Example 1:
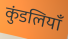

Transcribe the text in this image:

कुंडलियाँ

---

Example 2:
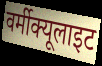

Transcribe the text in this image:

वर्मीक्यूलाइट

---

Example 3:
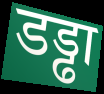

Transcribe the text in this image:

डड्ढा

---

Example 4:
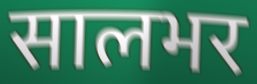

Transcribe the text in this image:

सालभर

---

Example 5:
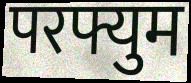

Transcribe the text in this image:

परफ्युम